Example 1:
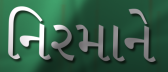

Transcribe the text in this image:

નિરમાને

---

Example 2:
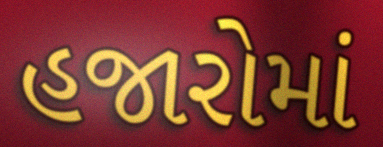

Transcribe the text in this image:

હજારોમાં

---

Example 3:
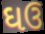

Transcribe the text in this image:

ઘઉ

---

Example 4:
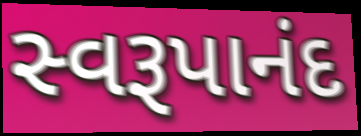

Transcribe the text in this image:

સ્વરૂપાનંદ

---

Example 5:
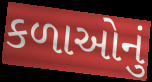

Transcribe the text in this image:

કળાઓનું